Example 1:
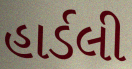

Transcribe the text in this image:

હાર્ડલી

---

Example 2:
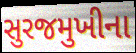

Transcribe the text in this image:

સુરજમુખીના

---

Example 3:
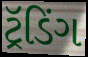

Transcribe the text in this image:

ટ્રૅડિંગ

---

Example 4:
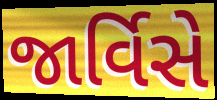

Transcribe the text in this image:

જાર્વિસે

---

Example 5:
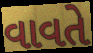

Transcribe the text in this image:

વાવતે